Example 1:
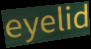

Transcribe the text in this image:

eyelid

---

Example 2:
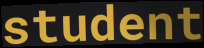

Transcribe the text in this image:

student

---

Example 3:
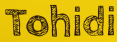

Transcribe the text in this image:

Tohidi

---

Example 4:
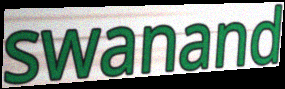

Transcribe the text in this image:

swanand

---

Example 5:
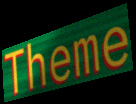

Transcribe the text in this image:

Theme